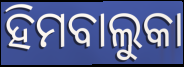
ହିମବାଲୁକା